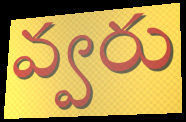
వ్వరు